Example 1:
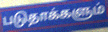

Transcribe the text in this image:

படுதாக்களும்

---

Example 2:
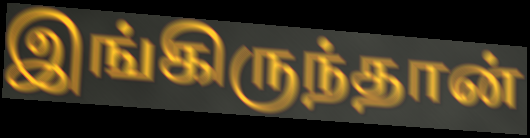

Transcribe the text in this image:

இங்கிருந்தான்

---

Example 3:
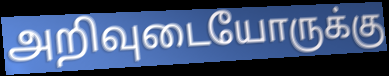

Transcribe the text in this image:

அறிவுடையோருக்கு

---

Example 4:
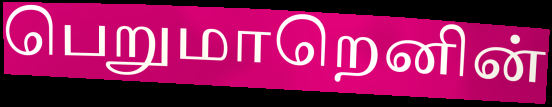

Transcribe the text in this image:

பெறுமாறெனின்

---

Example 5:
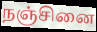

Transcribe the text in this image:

நஞ்சினை